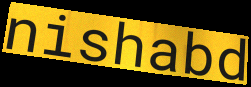
nishabd